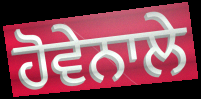
ਹੋਵੇਨਾਲੇ